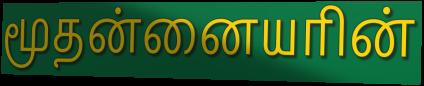
மூதன்னையரின்